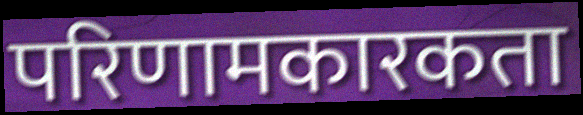
परिणामकारकता